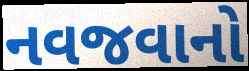
નવજવાનો